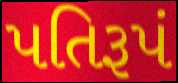
પતિરૂપં